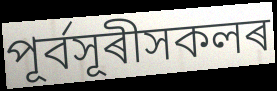
পূৰ্বসূৰীসকলৰ